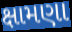
ક્ષામણા